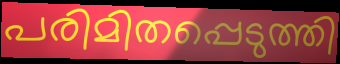
പരിമിതപ്പെടുത്തി